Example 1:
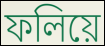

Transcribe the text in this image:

ফলিয়ে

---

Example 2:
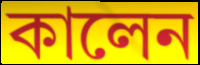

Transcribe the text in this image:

কালেন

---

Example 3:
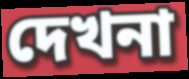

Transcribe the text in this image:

দেখনা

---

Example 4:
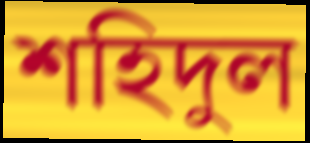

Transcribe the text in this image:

শহিদুল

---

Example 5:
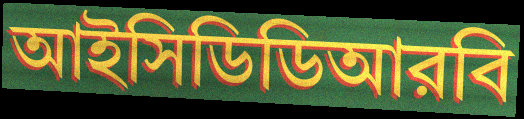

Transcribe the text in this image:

আইসিডিডিআরবি